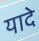
यादे